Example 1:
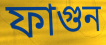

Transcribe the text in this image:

ফাগুন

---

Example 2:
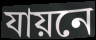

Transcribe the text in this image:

যায়নে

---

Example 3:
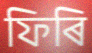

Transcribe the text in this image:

ফিৰি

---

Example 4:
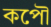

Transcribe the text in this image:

কপৌ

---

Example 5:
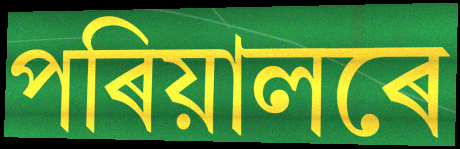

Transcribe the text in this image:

পৰিয়ালৰে